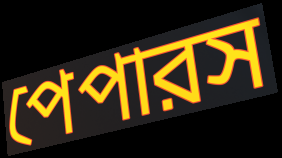
পেপারস